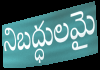
నిబద్ధులమై